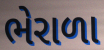
ભેરાળા